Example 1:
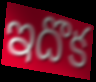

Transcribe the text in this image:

ఇదొక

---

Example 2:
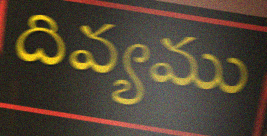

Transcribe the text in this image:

దివ్యము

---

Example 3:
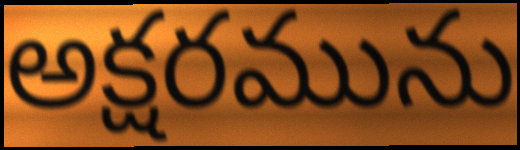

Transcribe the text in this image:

అక్షరమును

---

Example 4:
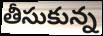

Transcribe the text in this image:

తీసుకున్న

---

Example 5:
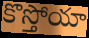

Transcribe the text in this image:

కొస్తోయా